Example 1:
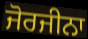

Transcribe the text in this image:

ਜੋਰਜੀਨਾ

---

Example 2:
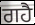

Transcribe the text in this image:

ਗਹੈ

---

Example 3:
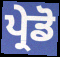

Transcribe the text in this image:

ਪ੍ਰੇਡੋ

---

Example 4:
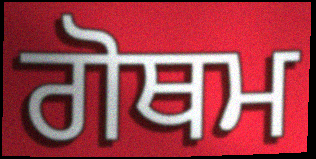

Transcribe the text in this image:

ਗੋਥਮ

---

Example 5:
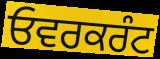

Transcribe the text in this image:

ਓਵਰਕਰੰਟ